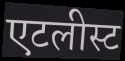
एटलीस्ट